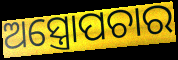
ଅସ୍ତ୍ରୋପଚାର